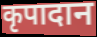
कृपादान